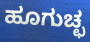
ಹೂಗುಚ್ಛ